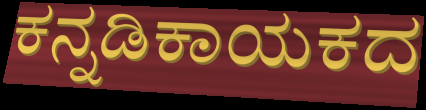
ಕನ್ನಡಿಕಾಯಕದ